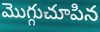
మొగ్గుచూపిన